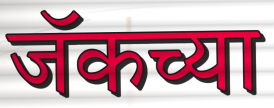
जॅकच्या